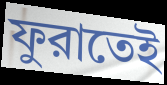
ফুরাতেই